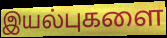
இயல்புகளை